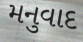
મનુવાદ